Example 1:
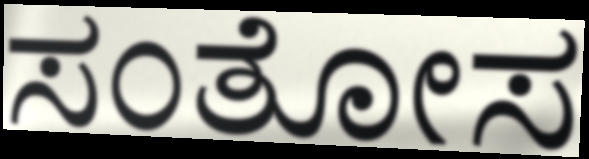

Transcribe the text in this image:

ಸಂತೋಸ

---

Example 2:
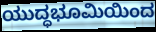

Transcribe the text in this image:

ಯುದ್ಧಭೂಮಿಯಿಂದ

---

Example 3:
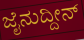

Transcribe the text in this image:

ಜೈನುದ್ದೀನ್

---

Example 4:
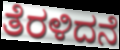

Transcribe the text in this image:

ತೆರಳಿದನೆ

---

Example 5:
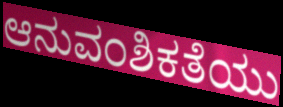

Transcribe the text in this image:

ಆನುವಂಶಿಕತೆಯು